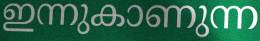
ഇന്നുകാണുന്ന